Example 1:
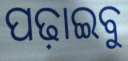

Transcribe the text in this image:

ପଢ଼ାଇବୁ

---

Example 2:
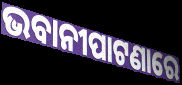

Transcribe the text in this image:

ଭବାନୀପାଟଣାରେ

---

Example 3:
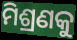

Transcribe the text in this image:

ମିଶ୍ରଣକୁ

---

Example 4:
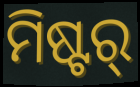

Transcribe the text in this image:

ମିଷ୍ଟର୍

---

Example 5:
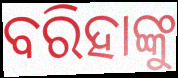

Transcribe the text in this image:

ବରିହାଙ୍କୁ